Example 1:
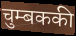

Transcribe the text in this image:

चुम्बककी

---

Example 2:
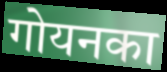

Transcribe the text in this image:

गोयनका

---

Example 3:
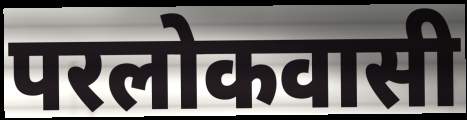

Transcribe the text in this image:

परलोकवासी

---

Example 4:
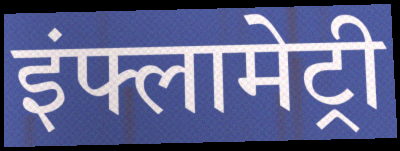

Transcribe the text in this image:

इंफ्लामेट्री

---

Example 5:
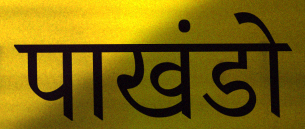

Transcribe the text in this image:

पाखंडो